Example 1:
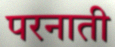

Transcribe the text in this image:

परनाती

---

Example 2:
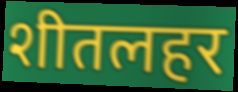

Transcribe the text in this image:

शीतलहर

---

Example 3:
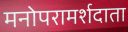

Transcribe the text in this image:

मनोपरामर्शदाता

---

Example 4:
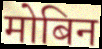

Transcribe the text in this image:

मोबिन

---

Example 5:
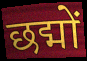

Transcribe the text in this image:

छद्मों